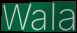
Wala